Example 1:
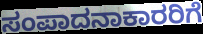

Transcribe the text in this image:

ಸಂಪಾದನಾಕಾರರಿಗೆ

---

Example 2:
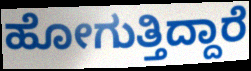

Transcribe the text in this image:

ಹೋಗುತ್ತಿದ್ದಾರೆ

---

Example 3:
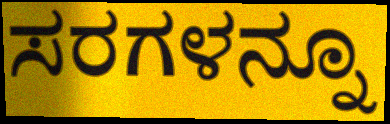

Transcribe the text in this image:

ಸರಗಳನ್ನೂ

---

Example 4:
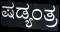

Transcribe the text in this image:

ಷಡ್ಯಂತ್ರ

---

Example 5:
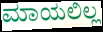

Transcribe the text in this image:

ಮಾಯಲಿಲ್ಲ